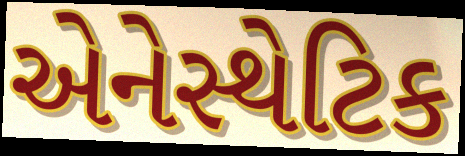
એનેસ્થેટિક